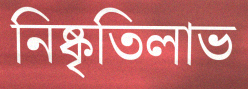
নিষ্কৃতিলাভ